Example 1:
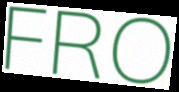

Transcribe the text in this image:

FRO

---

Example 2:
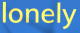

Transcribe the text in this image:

lonely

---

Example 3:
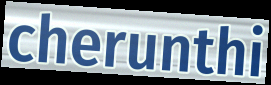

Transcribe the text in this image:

cherunthi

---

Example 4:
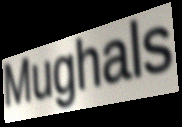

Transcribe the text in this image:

Mughals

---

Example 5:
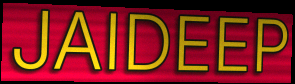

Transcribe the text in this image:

JAIDEEP